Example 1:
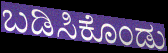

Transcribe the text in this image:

ಬಡಿಸಿಕೊಂಡು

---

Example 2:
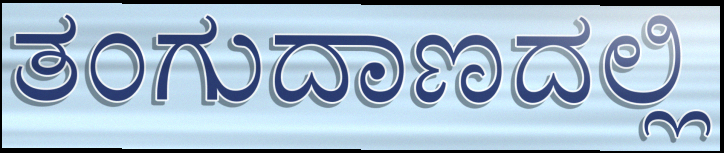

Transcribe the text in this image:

ತಂಗುದಾಣದಲ್ಲಿ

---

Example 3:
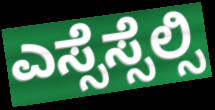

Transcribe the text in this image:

ಎಸ್ಸೆಸ್ಸೆಲ್ಸಿ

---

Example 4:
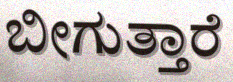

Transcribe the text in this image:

ಬೀಗುತ್ತಾರೆ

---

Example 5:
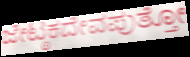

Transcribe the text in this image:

ಜೇಟ್ಠಕದೇವಪುತ್ತೋ